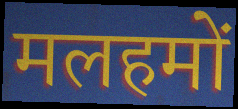
मलहमों